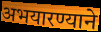
अभयारण्याने